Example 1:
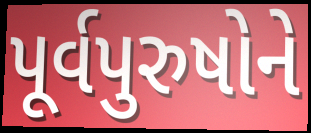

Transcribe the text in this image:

પૂર્વપુરુષોને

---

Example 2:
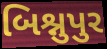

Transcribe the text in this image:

બિશ્નુપુર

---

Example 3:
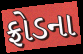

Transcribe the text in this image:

ફ્રોડના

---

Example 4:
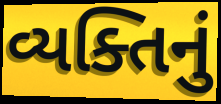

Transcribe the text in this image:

વ્યક્તિનું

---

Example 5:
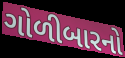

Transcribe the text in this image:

ગોળીબારનો